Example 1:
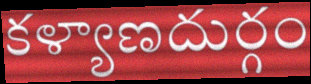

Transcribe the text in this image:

కళ్యాణదుర్గం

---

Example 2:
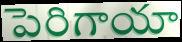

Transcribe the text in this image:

పెరిగాయా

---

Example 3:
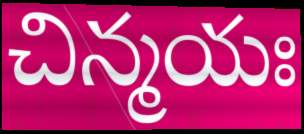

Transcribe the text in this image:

చిన్మయః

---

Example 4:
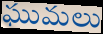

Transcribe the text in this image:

ఘుమలు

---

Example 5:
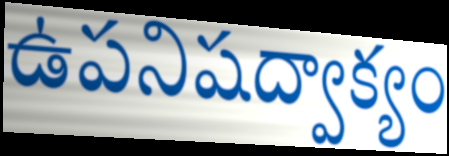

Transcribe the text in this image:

ఉపనిషద్వాక్యం